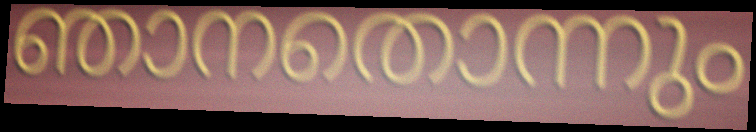
ഞാനതൊന്നും